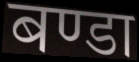
बण्डा